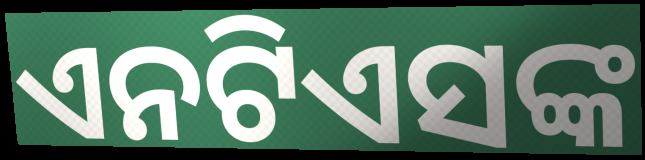
ଏନଟିଏସଙ୍କ